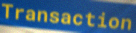
Transaction